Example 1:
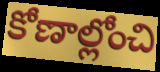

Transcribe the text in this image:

కోణాల్లోంచి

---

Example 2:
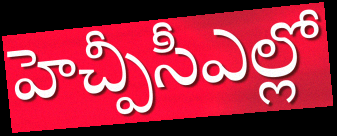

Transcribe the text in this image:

హెచ్పీసీఎల్లో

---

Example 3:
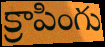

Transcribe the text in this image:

క్రాపింగు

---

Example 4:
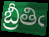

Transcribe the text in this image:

బ్రీతిఁ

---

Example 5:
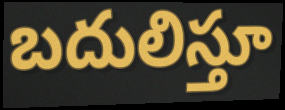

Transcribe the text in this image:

బదులిస్తూ